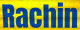
Rachin